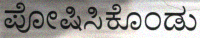
ಪೋಷಿಸಿಕೊಂಡು